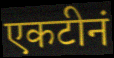
एकटीनं